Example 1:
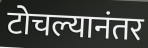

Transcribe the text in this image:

टोचल्यानंतर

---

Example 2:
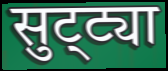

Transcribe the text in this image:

सुट्‌ट्या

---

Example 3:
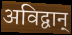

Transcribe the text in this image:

अविद्वान्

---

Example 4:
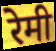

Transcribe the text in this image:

रेमी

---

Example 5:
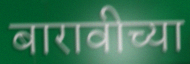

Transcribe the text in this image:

बारावीच्या